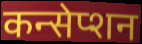
कन्सेप्शन